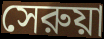
সেরুয়া